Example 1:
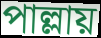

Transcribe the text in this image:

পাল্লায়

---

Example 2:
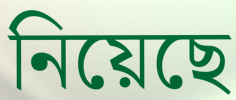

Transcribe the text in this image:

নিয়েছে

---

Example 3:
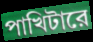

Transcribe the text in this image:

পাখিটারে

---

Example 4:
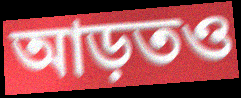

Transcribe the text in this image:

আড়তও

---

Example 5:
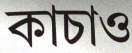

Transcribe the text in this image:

কাচাও